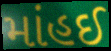
માંહઈ